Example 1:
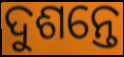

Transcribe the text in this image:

ଦୁଶନ୍ତେ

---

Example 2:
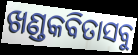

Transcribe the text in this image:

ଖଣ୍ଡକବିତାସବୁ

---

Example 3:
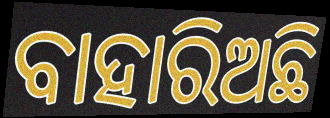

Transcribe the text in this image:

ବାହାରିଅଛି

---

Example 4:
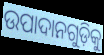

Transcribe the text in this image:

ଉପାଦାନଗୁଡ଼ିକୁ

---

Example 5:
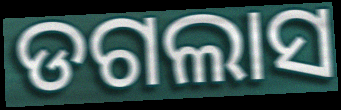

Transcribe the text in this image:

ଡଗଲାସ